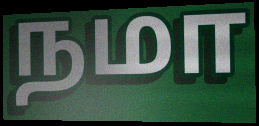
நமா